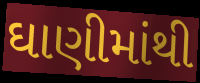
ઘાણીમાંથી